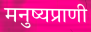
मनुष्यप्राणी